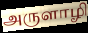
அருளாழி